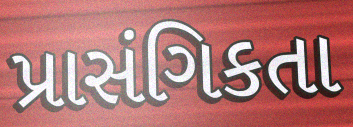
પ્રાસંગિકતા